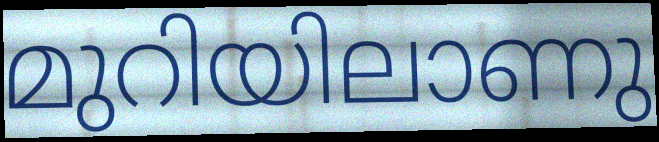
മുറിയിലാണു